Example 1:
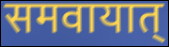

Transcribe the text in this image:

समवायात्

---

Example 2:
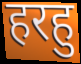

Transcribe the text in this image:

हरहु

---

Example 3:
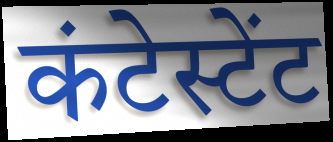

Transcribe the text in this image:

कंटेस्टेंट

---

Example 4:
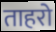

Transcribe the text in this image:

ताहरो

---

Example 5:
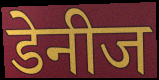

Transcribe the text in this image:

डेनीज